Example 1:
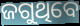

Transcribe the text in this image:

ଜଗୁଥିବେ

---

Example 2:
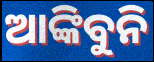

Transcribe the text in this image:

ଆଙ୍କିବୁନି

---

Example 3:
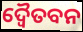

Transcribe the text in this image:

ଦ୍ବୈତବନ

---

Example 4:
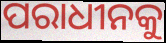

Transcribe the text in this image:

ପରାଧୀନକୁ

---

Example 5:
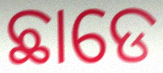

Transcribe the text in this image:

ଛାଡେ